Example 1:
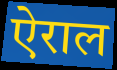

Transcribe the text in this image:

ऐराल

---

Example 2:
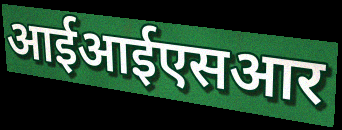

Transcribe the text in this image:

आईआईएसआर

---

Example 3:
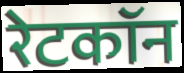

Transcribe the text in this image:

रेटकॉन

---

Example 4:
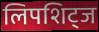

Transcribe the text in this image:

लिपशिट्ज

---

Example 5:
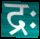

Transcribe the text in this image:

द्रः